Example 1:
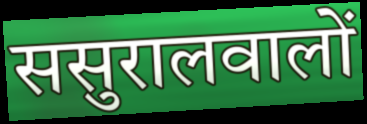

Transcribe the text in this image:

ससुरालवालों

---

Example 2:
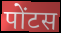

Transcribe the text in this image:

पोंटस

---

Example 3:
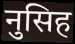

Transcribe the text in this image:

नुसिह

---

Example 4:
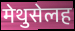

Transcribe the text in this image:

मेथुसेलह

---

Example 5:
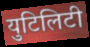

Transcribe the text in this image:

युटिलिटी